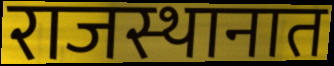
राजस्थानात